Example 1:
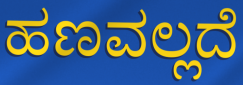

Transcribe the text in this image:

ಹಣವಲ್ಲದೆ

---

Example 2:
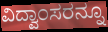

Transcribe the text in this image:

ವಿದ್ವಾಂಸರನ್ನೂ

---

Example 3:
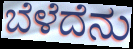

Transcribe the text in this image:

ಬೆಳೆದೆನು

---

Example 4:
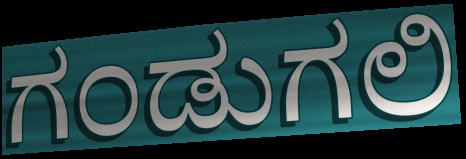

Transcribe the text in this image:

ಗಂಡುಗಲಿ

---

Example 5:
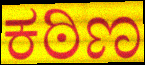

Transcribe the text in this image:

ಕಠಿಣ